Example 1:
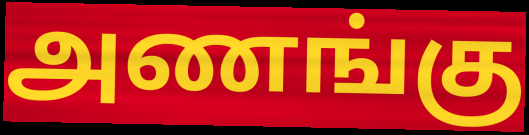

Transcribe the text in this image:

அணங்கு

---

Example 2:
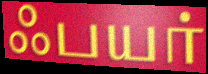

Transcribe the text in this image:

ஃபயர்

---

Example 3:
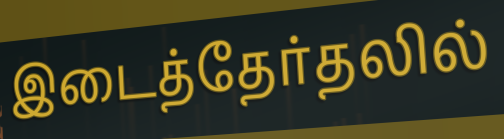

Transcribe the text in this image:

இடைத்தேர்தலில்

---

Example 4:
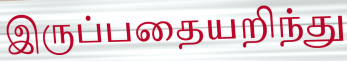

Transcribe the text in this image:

இருப்பதையறிந்து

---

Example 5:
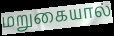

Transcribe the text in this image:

மறுகையால்